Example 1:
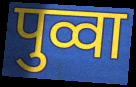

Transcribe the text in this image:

पुव्वा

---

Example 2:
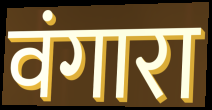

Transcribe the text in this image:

वंगारा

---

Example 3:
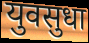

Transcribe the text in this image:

युवसुधा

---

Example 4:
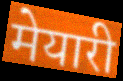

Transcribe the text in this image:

मेयारी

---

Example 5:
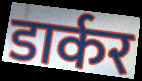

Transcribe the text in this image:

डार्कर